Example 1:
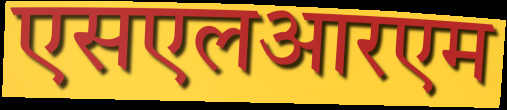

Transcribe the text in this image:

एसएलआरएम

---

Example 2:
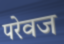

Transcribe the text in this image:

परेवज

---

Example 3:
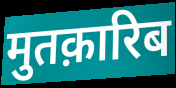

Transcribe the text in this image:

मुतक़ारिब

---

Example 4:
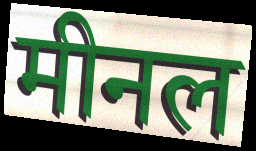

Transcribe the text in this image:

मीनल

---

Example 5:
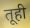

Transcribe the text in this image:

तूही